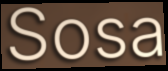
Sosa